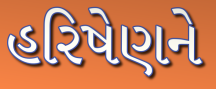
હરિષેણને